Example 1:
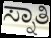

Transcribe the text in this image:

ಸ್ನಾತಿ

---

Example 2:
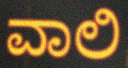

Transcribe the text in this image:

ವಾಲಿ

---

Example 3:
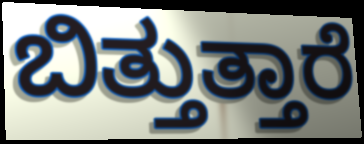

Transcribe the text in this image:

ಬಿತ್ತುತ್ತಾರೆ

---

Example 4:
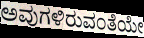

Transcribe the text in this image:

ಅವುಗಳಿರುವಂತೆಯೇ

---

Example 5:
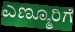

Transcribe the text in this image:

ಎಣ್ಮೂರಿಗೆ